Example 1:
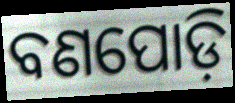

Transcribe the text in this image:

ବଣପୋଡ଼ି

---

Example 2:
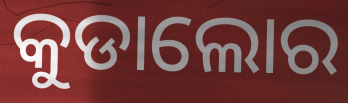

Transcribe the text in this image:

କୁଡାଲୋର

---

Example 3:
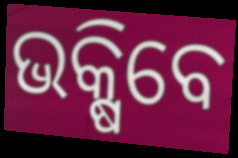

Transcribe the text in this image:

ଭକ୍ଷିବେ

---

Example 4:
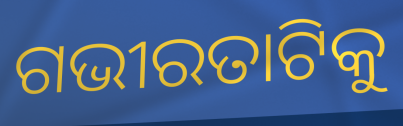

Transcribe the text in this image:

ଗଭୀରତାଟିକୁ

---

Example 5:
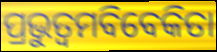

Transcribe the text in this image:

ପ୍ରଭୁତ୍ୱମବିବେକିତା